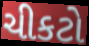
ચીકટો